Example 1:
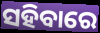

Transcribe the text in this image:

ସହିବାରେ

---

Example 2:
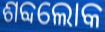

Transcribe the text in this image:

ଶବ୍ଦଲୋକ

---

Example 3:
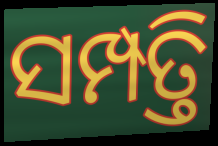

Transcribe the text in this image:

ସମ୍ପତ୍ତି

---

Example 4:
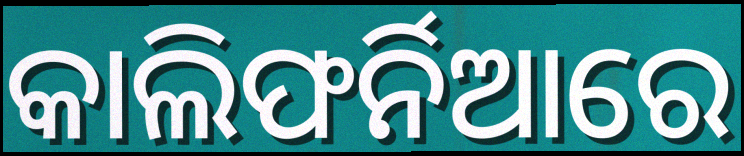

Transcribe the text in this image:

କାଲିଫର୍ନିଆରେ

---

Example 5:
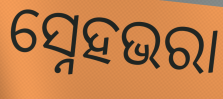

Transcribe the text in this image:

ସ୍ନେହଭରା